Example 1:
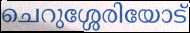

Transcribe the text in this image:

ചെറുശ്ശേരിയോട്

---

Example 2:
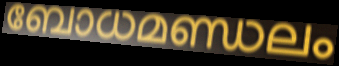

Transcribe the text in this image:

ബോധമണ്ഡലം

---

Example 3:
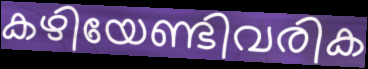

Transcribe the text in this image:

കഴിയേണ്ടിവരിക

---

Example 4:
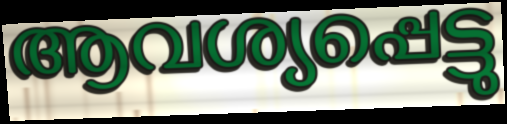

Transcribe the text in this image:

ആവശ്യപ്പെട്ടു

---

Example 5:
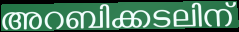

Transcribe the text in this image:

അറബിക്കടലിന്